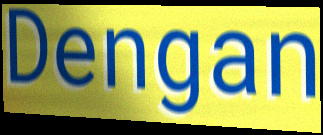
Dengan